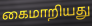
கைமாறியது